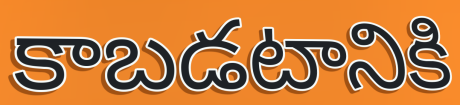
కాబడటానికి